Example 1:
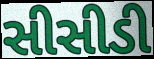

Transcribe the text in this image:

સીસીડી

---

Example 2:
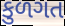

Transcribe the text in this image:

કુળગત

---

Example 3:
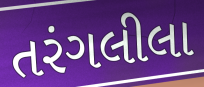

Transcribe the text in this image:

તરંગલીલા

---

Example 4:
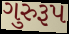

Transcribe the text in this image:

ગુરુરૂપ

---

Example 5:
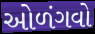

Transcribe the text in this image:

ઓળંગવો